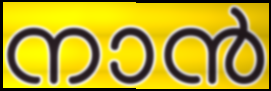
നാൻ